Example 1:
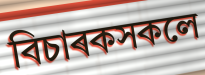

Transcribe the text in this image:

বিচাৰকসকলে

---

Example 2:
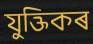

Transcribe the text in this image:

যুক্তিকৰ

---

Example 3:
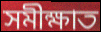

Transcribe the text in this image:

সমীক্ষাত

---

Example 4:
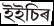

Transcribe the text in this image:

ইইচিৰ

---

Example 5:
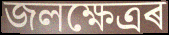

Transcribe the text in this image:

জলক্ষেত্ৰৰ